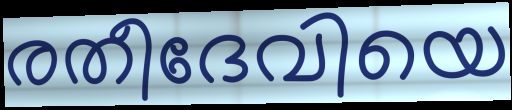
രതീദേവിയെ